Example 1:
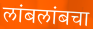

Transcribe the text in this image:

लांबलांबचा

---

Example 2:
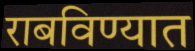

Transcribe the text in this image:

राबविण्‍यात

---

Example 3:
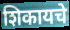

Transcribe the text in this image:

शिकायचे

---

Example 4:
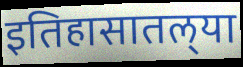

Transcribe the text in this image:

इतिहासातल्या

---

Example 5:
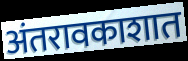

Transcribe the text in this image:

अंतरावकाशात